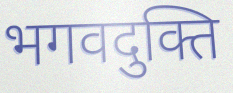
भगवदुक्ति